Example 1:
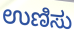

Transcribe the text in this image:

ಉಣಿಸು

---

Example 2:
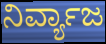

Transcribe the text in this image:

ನಿರ್ವ್ಯಾಜ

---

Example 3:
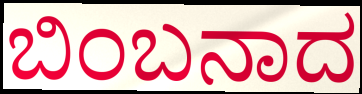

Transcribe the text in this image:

ಬಿಂಬನಾದ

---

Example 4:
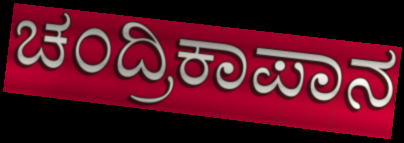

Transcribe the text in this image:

ಚಂದ್ರಿಕಾಪಾನ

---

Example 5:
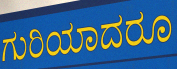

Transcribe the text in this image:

ಗುರಿಯಾದರೂ